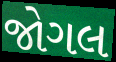
જોગલ